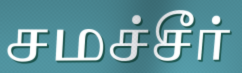
சமச்சீர்